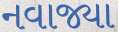
નવાજ્યા